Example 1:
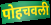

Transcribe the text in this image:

पोहचवली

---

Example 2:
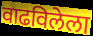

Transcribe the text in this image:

वाढविलेला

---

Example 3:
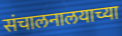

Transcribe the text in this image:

संचालनालयाच्या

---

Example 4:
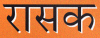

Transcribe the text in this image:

रासक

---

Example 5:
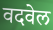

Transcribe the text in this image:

वदवेल